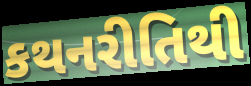
કથનરીતિથી